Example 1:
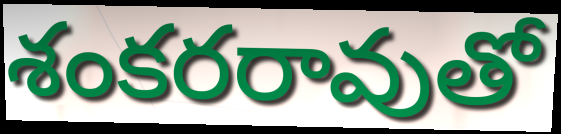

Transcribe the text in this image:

శంకరరావుతో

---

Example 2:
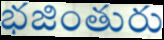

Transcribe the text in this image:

భజింతురు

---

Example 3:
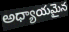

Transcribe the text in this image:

అధ్యాయమైన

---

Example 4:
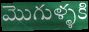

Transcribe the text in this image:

మొగుళ్ళకి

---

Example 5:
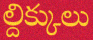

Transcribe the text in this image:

ల్దిక్కులు